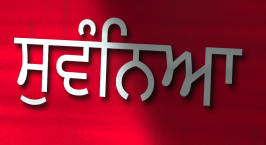
ਸੁਵੰਨਿਆ